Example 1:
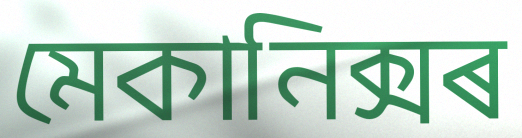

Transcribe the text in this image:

মেকানিক্সৰ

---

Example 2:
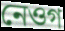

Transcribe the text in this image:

নেওগ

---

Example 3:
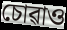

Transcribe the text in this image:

চোৱাও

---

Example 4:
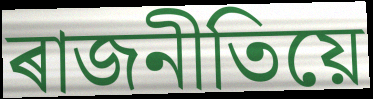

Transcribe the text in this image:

ৰাজনীতিয়ে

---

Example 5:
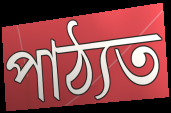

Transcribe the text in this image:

পাঠ্যত